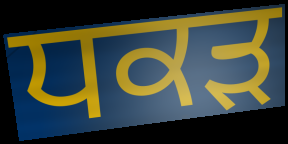
ਧਕੜ